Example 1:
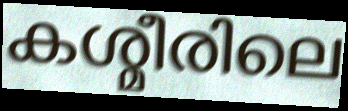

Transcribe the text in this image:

കശ്മീരിലെ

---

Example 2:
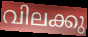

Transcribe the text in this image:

വിലക്കു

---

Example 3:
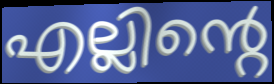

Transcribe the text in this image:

എല്ലിന്റെ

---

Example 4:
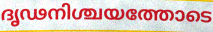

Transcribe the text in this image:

ദൃഢനിശ്ചയത്തോടെ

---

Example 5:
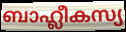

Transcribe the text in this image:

ബാഹ്ലീകസ്യ